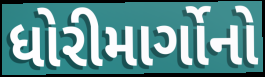
ધોરીમાર્ગોનો